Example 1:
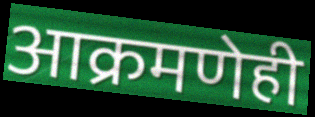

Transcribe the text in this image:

आक्रमणेही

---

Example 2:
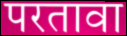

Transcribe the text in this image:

परतावा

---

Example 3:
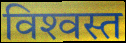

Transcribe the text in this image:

विश्‍वस्त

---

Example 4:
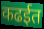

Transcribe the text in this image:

कढईत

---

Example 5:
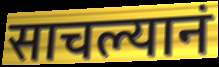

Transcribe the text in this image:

साचल्यानं